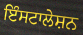
ਇੰਸਟਾਲੇਸ਼ਨ